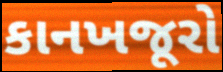
કાનખજૂરો